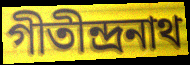
গীতীন্দ্রনাথ